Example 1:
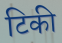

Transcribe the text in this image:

टिकी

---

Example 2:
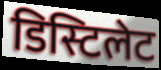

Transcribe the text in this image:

डिस्टिलेट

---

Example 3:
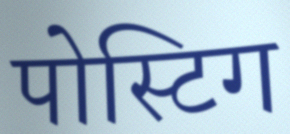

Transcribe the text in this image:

पोस्टिग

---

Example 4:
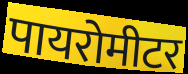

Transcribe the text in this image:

पायरोमीटर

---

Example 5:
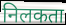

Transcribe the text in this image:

निलकता